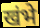
खंभे